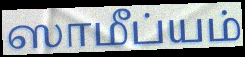
ஸாமீப்யம்